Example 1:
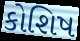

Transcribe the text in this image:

કોશિષ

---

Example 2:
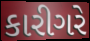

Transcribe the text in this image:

કારીગરે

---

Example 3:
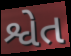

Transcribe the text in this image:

શ્વેત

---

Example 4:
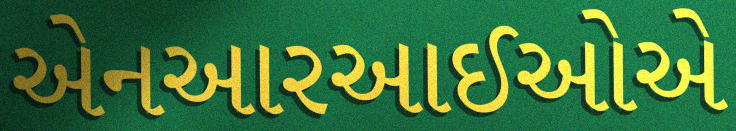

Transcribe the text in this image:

એનઆરઆઈઓએ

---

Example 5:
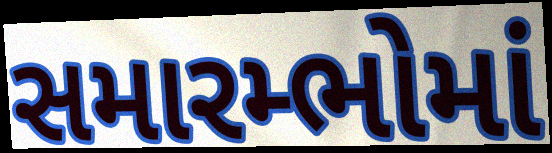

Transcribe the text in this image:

સમારમ્ભોમાં